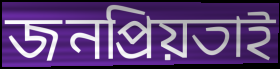
জনপ্রিয়তাই